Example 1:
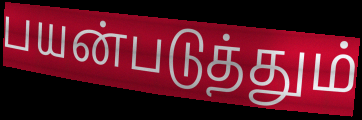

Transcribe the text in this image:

பயன்படுத்தும்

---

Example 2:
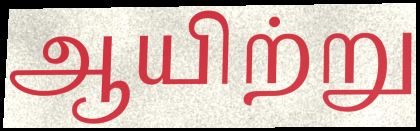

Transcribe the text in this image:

ஆயிற்று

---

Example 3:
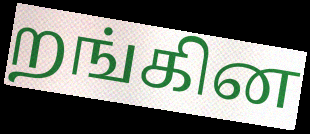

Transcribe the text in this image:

றங்கின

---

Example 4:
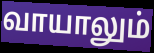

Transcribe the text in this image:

வாயாலும்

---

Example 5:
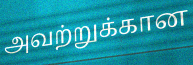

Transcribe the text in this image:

அவற்றுக்கான